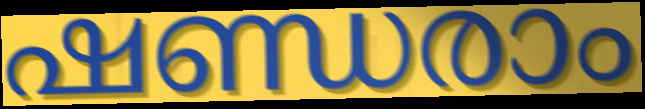
ഷണ്ഡരാം